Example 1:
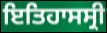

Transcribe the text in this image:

ਇਤਿਹਾਸਸ੍ਰੀ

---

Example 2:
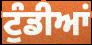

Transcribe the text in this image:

ਟੁੰਡੀਆਂ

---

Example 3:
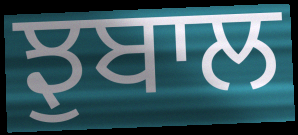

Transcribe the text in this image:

ਝੁਬਾਲ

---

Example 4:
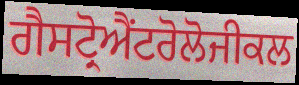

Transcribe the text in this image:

ਗੈਸਟ੍ਰੋਐਂਟਰੋਲੋਜੀਕਲ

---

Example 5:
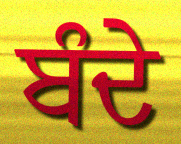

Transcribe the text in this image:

ਬੰਦੇ